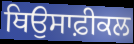
ਥਿਉਸਾਫ਼ੀਕਲ